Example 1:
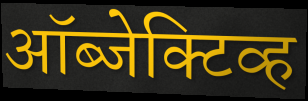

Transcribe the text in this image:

ऑब्जेक्टिव्ह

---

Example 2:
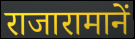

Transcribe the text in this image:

राजारामानें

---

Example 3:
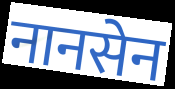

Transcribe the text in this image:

नानसेन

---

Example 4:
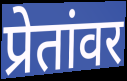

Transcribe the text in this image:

प्रेतांवर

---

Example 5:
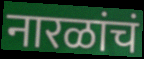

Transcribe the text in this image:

नारळांचं